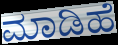
ಮಾಡಿಹೆ